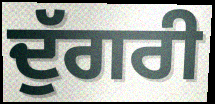
ਦੁੱਗਰੀ